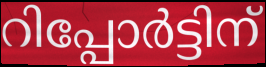
റിപ്പോർട്ടിന്